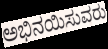
ಅಭಿನಯಿಸುವರು